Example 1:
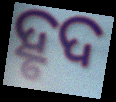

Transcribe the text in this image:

ହୃଦ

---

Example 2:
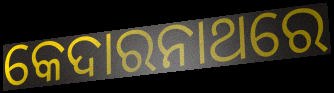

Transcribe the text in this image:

କେଦାରନାଥରେ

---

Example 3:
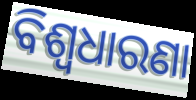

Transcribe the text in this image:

ବିଶ୍ୱଧାରଣା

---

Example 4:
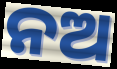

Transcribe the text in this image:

ନଅ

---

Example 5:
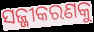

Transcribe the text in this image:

ସଜ୍ଜୀକରଣକୁ